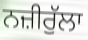
ਨਜ਼ੀਰੁੱਲਾ